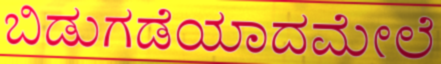
ಬಿಡುಗಡೆಯಾದಮೇಲೆ